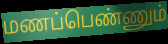
மணப்பெண்ணும்